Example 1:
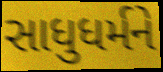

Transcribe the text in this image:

સાધુધર્મને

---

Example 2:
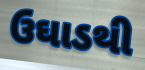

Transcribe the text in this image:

ઉઘાડથી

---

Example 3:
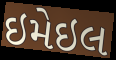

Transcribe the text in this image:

ઇમેઇલ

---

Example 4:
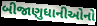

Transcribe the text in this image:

બીજાણુધાનીઓનો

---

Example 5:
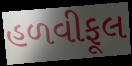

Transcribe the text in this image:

હળવીફૂલ